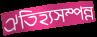
ঐতিহ্যসম্পন্ন